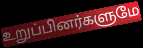
உறுப்பினர்களுமே